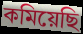
কমিয়েছি